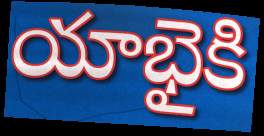
యాభైకి